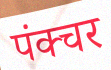
पंक्चर